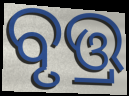
ବୃତ୍ତ୍ର